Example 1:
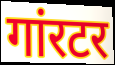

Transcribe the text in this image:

गांरटर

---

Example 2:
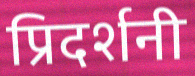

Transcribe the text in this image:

प्रिदर्शनी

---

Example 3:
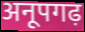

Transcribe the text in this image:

अनूपगढ़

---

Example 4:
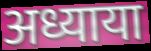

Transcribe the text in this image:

अध्याया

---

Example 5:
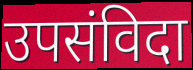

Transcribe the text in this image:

उपसंविदा